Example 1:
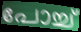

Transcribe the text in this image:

പോച്ച്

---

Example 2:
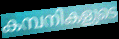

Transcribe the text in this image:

കമ്പനികളുടെ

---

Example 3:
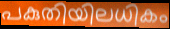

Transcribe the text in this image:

പകുതിയിലധികം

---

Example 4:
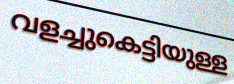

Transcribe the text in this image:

വളച്ചുകെട്ടിയുള്ള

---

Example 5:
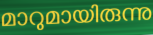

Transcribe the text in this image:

മാറുമായിരുന്നു